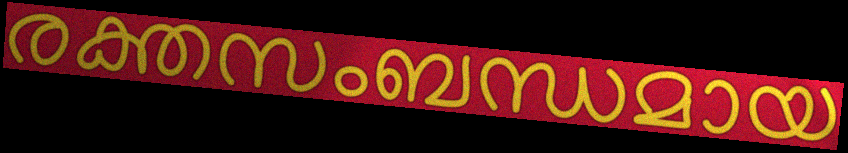
രക്തസംബന്ധമായ